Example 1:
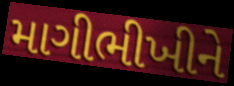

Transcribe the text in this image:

માગીભીખીને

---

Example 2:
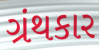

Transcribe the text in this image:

ગ્રંથકાર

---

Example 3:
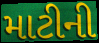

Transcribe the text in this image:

માટીની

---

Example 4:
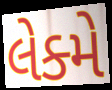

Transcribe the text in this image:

લેક્મે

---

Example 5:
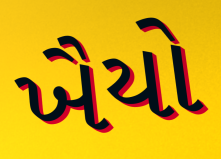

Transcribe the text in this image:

ખૈયો